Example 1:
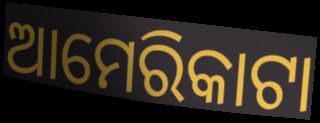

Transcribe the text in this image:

ଆମେରିକାଟା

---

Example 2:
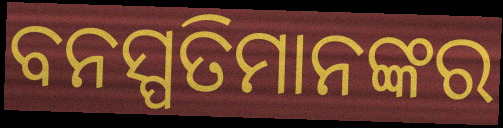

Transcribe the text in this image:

ବନସ୍ପତିମାନଙ୍କର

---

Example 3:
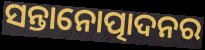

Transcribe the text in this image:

ସନ୍ତାନୋତ୍ପାଦନର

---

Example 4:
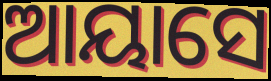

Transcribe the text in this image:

ଆୟାସେ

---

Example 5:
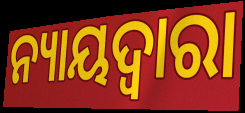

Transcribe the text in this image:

ନ୍ୟାୟଦ୍ୱାରା